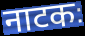
नाटकः